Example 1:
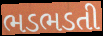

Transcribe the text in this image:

ભડભડતી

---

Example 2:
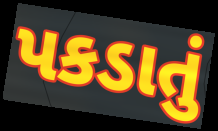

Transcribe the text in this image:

પકડાતું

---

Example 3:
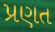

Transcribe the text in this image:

પ્રણત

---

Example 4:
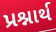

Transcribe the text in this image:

પ્રશ્નાર્થ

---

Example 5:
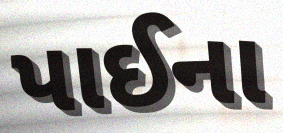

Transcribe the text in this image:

પાઈના